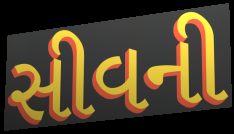
સીવની